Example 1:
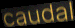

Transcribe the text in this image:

caudal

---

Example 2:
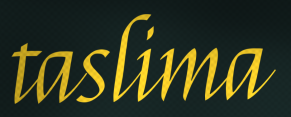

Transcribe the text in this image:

taslima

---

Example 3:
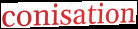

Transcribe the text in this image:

conisation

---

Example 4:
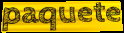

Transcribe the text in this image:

paquete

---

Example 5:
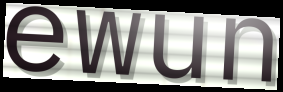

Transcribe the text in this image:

ewun